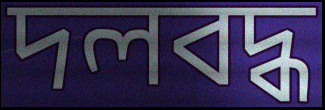
দলবদ্ধ